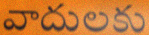
వాదులకు